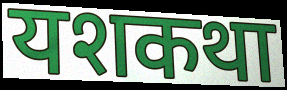
यशकथा